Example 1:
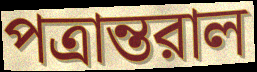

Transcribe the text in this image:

পত্রান্তরাল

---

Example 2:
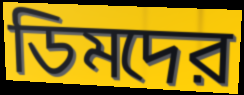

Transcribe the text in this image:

ডিমদের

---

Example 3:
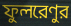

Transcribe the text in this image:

ফুলরেণুর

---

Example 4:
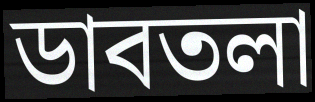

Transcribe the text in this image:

ডাবতলা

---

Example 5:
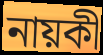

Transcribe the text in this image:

নায়কী